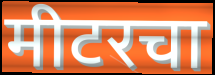
मीटरचा